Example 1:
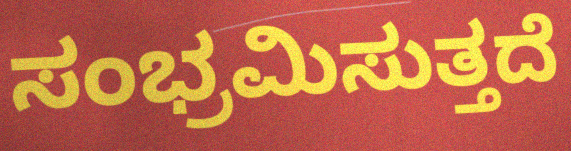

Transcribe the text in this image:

ಸಂಭ್ರಮಿಸುತ್ತದೆ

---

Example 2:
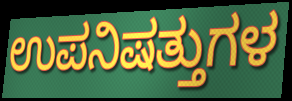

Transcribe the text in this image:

ಉಪನಿಷತ್ತುಗಳ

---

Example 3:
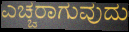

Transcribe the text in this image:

ಎಚ್ಚರಾಗುವುದು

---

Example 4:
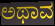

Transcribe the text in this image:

ಅಥಾವ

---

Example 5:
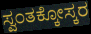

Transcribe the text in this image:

ಸ್ವಂತಕ್ಕೋಸ್ಕರ